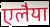
एलैया